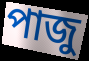
পাজু